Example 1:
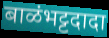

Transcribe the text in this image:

बाळंभट्टदादा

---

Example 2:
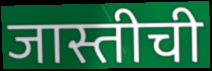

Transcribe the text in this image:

जास्तीची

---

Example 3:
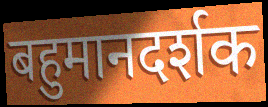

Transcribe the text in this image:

बहुमानदर्शक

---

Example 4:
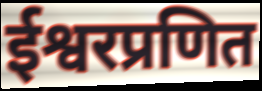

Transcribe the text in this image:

ईश्वरप्रणित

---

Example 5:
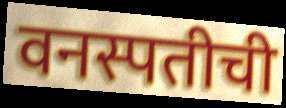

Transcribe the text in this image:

वनस्पतीची